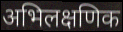
अभिलक्षणिक